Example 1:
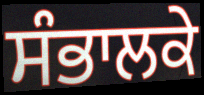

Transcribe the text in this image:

ਸੰਭਾਲਕੇ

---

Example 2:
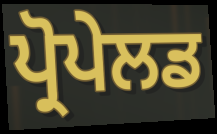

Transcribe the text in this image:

ਪ੍ਰੋਪੇਲਡ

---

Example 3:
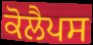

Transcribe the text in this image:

ਕੋਲੈਪਸ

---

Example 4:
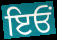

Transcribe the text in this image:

ਇਓਂ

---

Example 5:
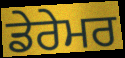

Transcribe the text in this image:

ਡੇਰੇਮਰ